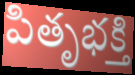
పితృభక్తి